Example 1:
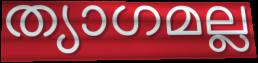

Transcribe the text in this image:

ത്യാഗമല്ല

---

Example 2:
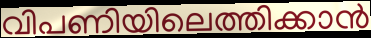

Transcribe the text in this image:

വിപണിയിലെത്തിക്കാൻ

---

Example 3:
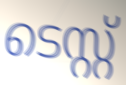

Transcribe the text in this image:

ടെസ്റ്റ്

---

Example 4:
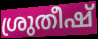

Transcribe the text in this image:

ശ്രുതീഷ്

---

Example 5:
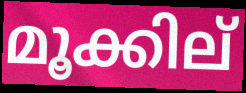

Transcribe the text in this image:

മൂക്കില്